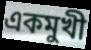
একমুখী